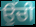
ਉੱਚੀ